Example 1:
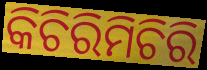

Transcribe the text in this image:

କିଚିରିମିଚିରି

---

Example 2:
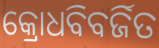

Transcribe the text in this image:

କ୍ରୋଧବିବର୍ଜିତ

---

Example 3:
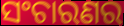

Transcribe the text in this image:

ସଂଚାରଣର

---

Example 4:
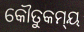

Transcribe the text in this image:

କୌତୁକମ୍‍ୟ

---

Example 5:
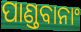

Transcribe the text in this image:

ପାଣ୍ଡବାନାଂ